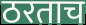
ठरताच